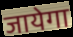
जायेगा